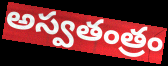
అస్వతంత్రం